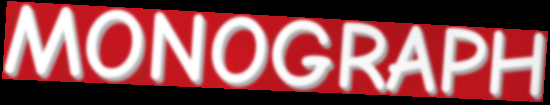
MONOGRAPH